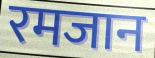
रमजान